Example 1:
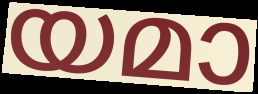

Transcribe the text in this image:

യമാ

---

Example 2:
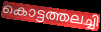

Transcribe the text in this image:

കൊട്ടത്തലച്ചി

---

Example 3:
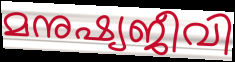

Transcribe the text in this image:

മനുഷ്യജീവി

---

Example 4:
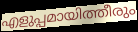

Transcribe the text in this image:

എളുപ്പമായിത്തീരും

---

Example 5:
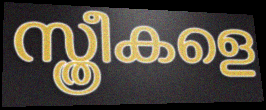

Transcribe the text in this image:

സ്ത്രീകളെ